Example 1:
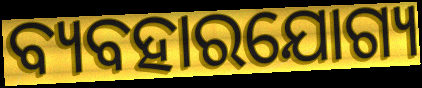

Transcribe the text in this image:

ବ୍ୟବହାରଯୋଗ୍ୟ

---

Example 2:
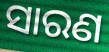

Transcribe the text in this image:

ସାରଣ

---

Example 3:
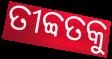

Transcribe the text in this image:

ତୀବ୍ବତକୁ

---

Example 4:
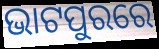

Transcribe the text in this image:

ଭାଟପୁରରେ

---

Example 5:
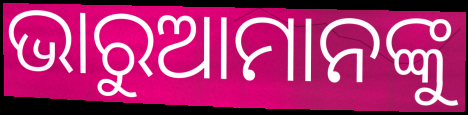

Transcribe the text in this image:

ଭାରୁଆମାନଙ୍କୁ